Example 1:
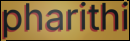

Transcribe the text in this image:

pharithi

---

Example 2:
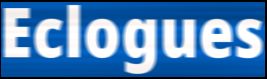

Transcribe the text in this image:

Eclogues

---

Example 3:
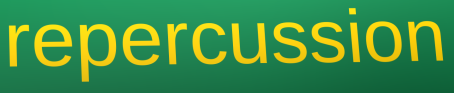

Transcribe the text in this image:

repercussion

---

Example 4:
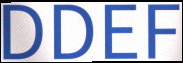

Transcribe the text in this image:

DDEF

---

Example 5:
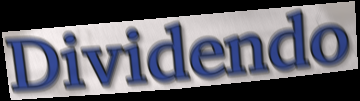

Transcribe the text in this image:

Dividendo